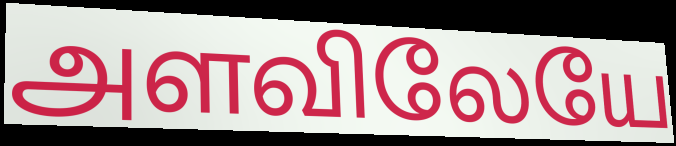
அளவிலேயே